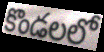
కొండలలో